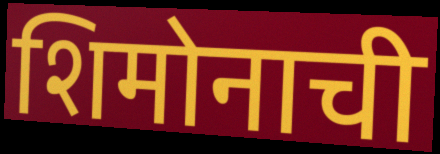
शिमोनाची